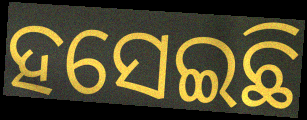
ହସେଇଛି